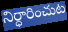
నిర్ధారించుట